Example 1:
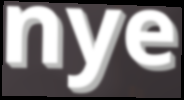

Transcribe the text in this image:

nye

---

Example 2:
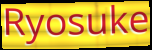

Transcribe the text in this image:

Ryosuke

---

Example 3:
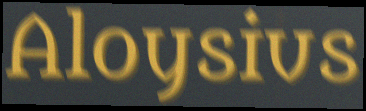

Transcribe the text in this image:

Aloysius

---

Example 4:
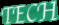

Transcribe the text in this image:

TECH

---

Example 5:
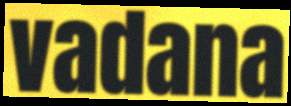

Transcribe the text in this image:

vadana